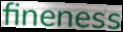
fineness